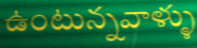
ఉంటున్నవాళ్ళు